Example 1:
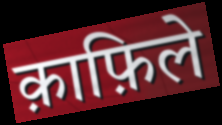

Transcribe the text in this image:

क़ाफ़िले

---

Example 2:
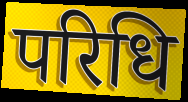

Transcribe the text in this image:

परिधि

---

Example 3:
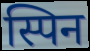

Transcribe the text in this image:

स्पिन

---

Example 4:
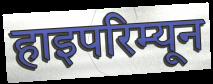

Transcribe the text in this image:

हाइपरिम्यून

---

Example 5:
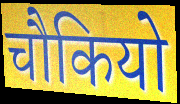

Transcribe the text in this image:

चौकियो